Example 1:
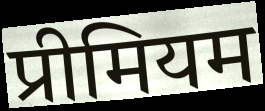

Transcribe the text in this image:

प्रीमियम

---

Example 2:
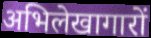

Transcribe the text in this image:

अभिलेखागारों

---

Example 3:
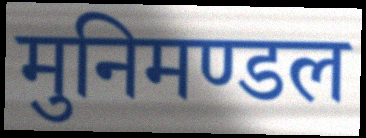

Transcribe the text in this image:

मुनिमण्डल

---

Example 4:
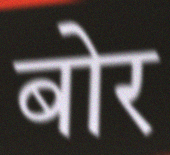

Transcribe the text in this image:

बोर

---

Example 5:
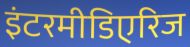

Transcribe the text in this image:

इंटरमीडिएरिज